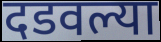
दडवल्या